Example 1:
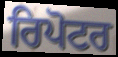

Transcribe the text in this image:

ਰਿਪੋਟਰ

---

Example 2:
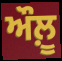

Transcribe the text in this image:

ਔਲ਼ੂ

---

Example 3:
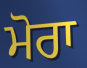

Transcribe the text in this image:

ਮੋਰਾ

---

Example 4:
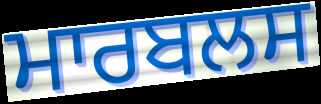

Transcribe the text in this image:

ਮਾਰਬਲਸ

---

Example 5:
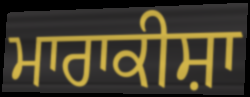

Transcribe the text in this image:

ਮਾਰਾਕੀਸ਼ਾ